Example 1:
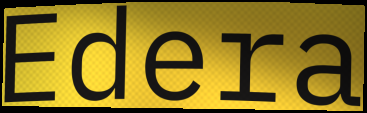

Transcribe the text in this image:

Edera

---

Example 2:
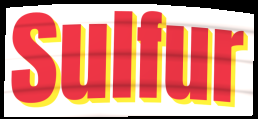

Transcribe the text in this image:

Sulfur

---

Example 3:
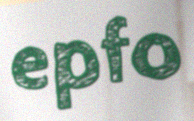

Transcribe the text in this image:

epfo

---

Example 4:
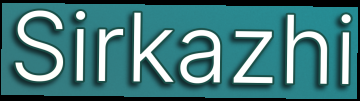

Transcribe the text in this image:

Sirkazhi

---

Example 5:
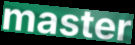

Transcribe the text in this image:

master